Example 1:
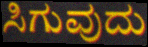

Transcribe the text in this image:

ಸಿಗುವುದು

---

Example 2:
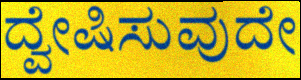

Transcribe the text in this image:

ದ್ವೇಷಿಸುವುದೇ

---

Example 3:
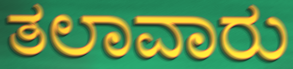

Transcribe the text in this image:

ತಲಾವಾರು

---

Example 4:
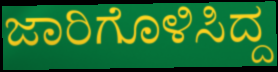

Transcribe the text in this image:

ಜಾರಿಗೊಳಿಸಿದ್ದ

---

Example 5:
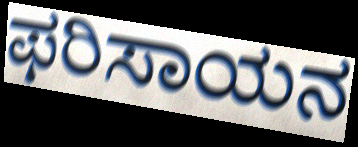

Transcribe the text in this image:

ಫರಿಸಾಯನ